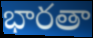
భారతా